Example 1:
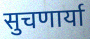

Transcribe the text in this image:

सुचणार्या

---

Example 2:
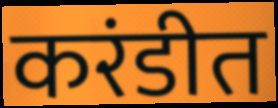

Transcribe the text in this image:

करंडीत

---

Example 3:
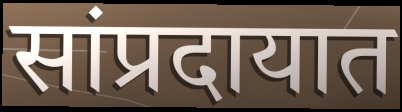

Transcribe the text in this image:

सांप्रदायात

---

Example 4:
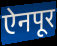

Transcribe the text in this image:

ऐनपूर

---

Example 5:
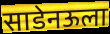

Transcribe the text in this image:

साडेनऊला